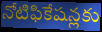
నోటిఫికేషన్లకు